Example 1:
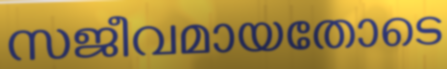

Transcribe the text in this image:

സജീവമായതോടെ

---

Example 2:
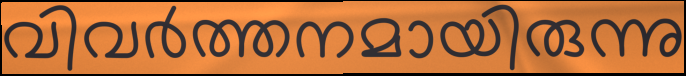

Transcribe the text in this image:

വിവർത്തനമായിരുന്നു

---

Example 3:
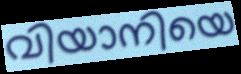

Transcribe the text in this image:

വിയാനിയെ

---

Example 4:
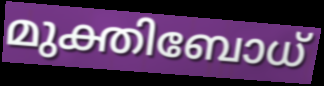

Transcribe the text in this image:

മുക്തിബോധ്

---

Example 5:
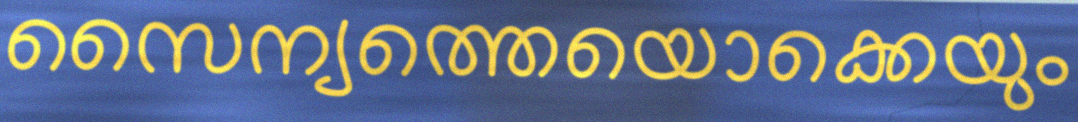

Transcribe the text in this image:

സൈന്യത്തെയൊക്കെയും